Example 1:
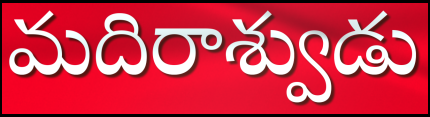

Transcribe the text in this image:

మదిరాశ్వుడు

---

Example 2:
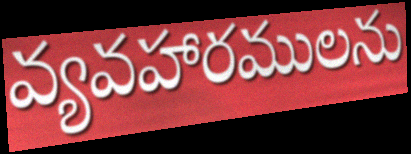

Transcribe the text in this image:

వ్యవహారములను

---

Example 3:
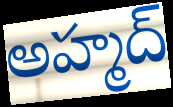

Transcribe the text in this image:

అహ్మద్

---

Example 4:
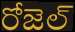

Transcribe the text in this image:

రోజెల్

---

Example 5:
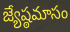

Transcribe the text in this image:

జ్యేష్ఠమాసం